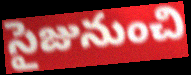
సైజునుంచి